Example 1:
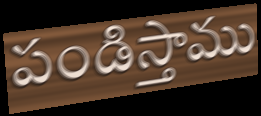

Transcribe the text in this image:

పండిస్తాము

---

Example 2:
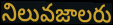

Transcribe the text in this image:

నిలువజాలరు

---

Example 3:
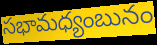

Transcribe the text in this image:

సభామధ్యంబునం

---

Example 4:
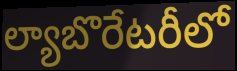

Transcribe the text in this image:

ల్యాబొరేటరీలో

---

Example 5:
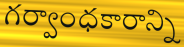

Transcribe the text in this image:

గర్వాంధకారాన్ని